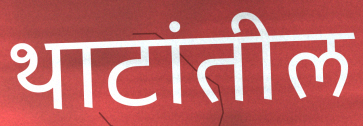
थाटांतील